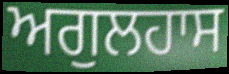
ਅਗੁਲਹਾਸ